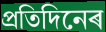
প্ৰতিদিনেৰ